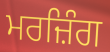
ਮਰਜ਼ਿੰਗ